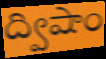
ద్విషాం